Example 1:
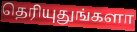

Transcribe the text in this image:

தெரியுதுங்களா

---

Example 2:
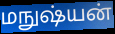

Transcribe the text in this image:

மநுஷ்யன்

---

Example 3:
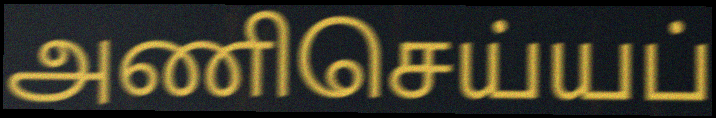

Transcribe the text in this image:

அணிசெய்யப்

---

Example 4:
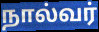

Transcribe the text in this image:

நால்வர்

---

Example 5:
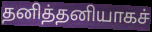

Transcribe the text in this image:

தனித்தனியாகச்